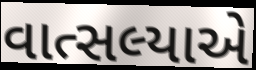
વાત્સલ્યાએ